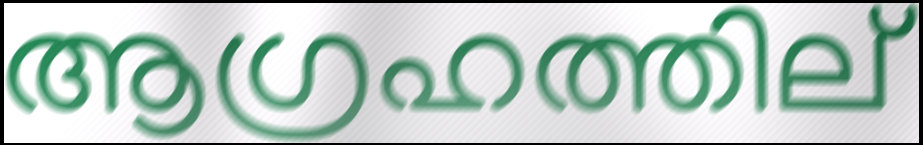
ആഗ്രഹത്തില്